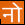
नो